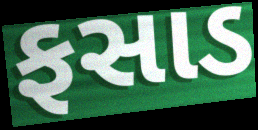
ફસાડ